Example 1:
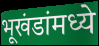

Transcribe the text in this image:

भूखंडांमध्ये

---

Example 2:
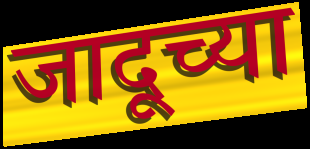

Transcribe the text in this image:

जादूच्या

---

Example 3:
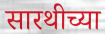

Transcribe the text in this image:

सारथीच्या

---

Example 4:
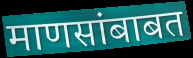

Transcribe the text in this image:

माणसांबाबत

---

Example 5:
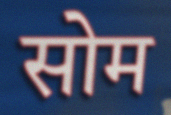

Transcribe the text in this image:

सोम